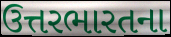
ઉત્તરભારતના